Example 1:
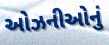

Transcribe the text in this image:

ઓઝનીઓનું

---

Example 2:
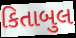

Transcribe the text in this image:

કિતાબુલ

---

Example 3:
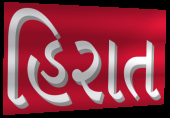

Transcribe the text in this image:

હિરાત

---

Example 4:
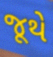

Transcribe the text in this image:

જૂથે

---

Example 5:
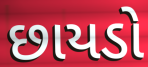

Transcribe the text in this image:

છાયડો